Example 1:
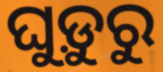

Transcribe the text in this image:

ଘୁଡ଼ୁରୁ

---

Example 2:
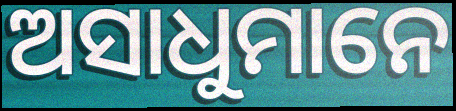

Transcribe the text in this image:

ଅସାଧୁମାନେ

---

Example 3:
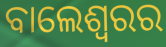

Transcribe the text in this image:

ବାଲେଶ୍ୱରର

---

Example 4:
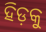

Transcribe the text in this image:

ହିଡ଼କୁ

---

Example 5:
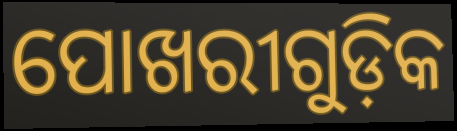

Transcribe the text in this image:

ପୋଖରୀଗୁଡ଼ିକ